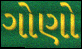
ગોણો